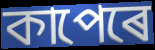
কাপেৰে